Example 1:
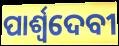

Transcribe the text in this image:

ପାର୍ଶ୍ୱଦେବୀ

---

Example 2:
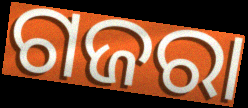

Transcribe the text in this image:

ଗଜରା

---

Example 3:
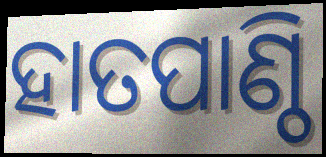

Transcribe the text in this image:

ହାତପାଣ୍ଠି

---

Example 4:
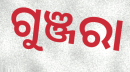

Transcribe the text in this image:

ଗୁଞ୍ଜରା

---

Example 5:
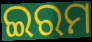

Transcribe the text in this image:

ଇରମ